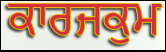
ਕਾਰਜਕੁਮ